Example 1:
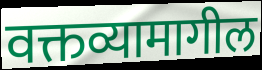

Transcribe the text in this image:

वक्तव्यामागील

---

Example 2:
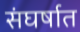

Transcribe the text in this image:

संघर्षात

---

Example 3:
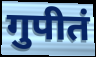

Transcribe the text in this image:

गुपीतं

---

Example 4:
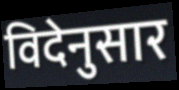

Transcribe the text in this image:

विदेनुसार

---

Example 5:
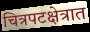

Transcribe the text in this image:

चित्रपटक्षेत्रात